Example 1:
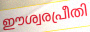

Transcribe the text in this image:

ഈശ്വരപ്രീതി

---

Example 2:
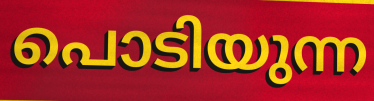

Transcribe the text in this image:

പൊടിയുന്ന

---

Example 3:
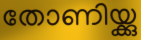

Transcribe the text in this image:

തോണിയ്ക്കു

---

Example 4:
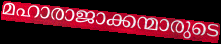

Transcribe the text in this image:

മഹാരാജാക്കന്മാരുടെ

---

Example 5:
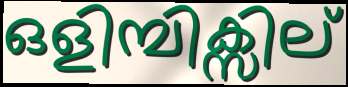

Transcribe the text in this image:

ഒളിമ്പിക്സില്